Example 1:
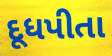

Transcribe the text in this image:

દૂધપીતા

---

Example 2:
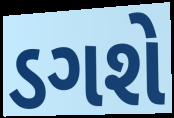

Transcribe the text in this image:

ડગશે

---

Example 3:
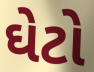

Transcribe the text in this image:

ઘેટો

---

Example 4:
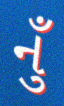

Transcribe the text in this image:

નુઁ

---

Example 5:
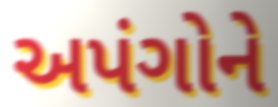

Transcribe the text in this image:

અપંગોને